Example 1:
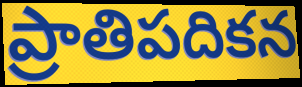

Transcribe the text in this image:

ప్రాతిపదికన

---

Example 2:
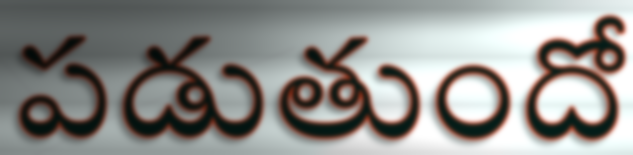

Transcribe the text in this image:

పడుతుందో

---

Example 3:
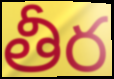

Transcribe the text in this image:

తీర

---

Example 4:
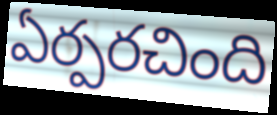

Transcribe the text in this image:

ఏర్పరచింది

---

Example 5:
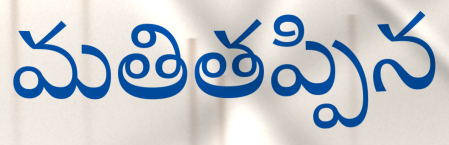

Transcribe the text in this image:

మతితప్పిన